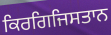
ਕਿਰਗਿਜਿਸਤਾਨ